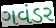
ગવંડર